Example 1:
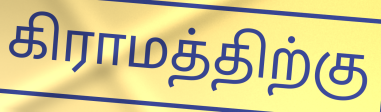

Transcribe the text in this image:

கிராமத்திற்கு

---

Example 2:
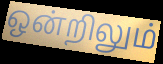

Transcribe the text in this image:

ஒன்றிலும்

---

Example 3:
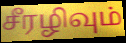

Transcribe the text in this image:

சீரழிவும்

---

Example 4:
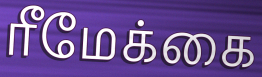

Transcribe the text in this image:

ரீமேக்கை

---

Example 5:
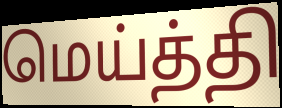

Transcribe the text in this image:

மெய்த்தி